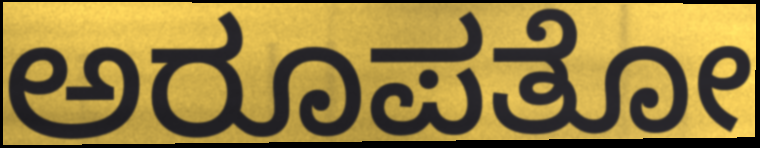
ಅರೂಪತೋ